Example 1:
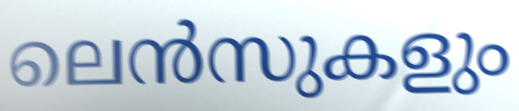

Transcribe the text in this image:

ലെൻസുകളും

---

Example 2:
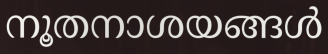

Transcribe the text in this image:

നൂതനാശയങ്ങൾ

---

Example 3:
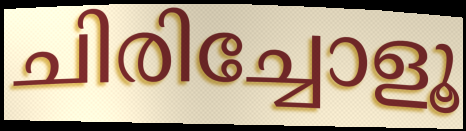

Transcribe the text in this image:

ചിരിച്ചോളൂ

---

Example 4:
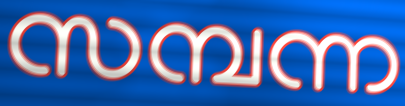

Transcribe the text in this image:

സമ്പന്ന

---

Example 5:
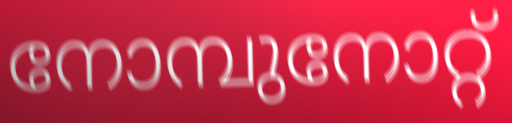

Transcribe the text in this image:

നോമ്പുനോറ്റ്